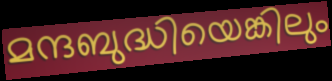
മന്ദബുദ്ധിയെങ്കിലും